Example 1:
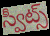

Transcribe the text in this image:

స్వీట్స్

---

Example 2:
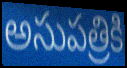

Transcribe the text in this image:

అసుపత్రికి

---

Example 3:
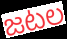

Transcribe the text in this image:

జటల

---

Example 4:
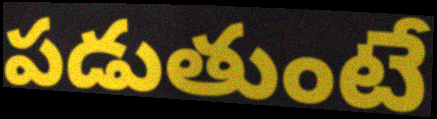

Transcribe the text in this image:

పడుతుంటే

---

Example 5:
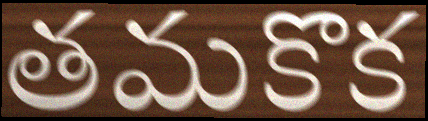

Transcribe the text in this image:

తమకొక